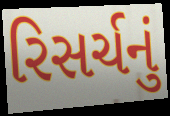
રિસર્ચનું